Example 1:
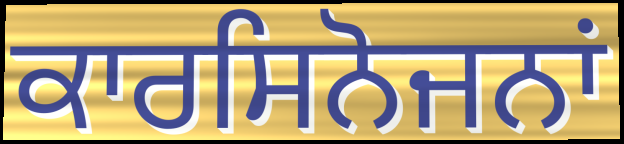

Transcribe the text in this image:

ਕਾਰਸਿਨੋਜਨਾਂ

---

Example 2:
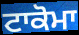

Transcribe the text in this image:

ਟਾਕੋਮਾ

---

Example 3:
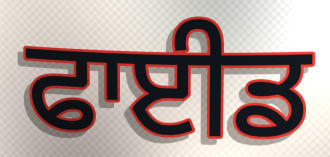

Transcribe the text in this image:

ਫਾਈਡ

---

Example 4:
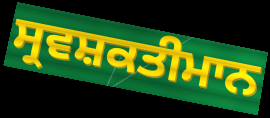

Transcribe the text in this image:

ਸ੍ਰਵਸ਼ਕਤੀਮਾਨ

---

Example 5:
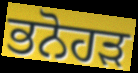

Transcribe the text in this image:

ਭਨੋਹੜ